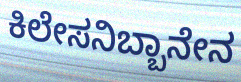
ಕಿಲೇಸನಿಬ್ಬಾನೇನ